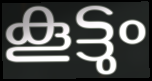
കൂട്ടും